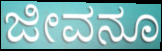
ಜೀವನೂ